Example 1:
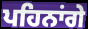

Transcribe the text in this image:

ਪਹਿਨਾਂਗੇ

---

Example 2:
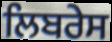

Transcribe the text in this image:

ਲਿਬਰੇਸ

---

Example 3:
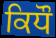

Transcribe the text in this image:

ਕਿਧੌ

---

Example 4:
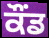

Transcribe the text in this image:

ਕੌਂਡ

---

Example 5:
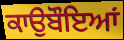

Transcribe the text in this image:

ਕਾਉਬੌਇਆਂ